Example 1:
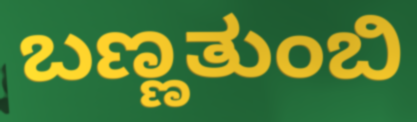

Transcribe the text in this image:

ಬಣ್ಣತುಂಬಿ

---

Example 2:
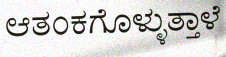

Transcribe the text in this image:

ಆತಂಕಗೊಳ್ಳುತ್ತಾಳೆ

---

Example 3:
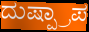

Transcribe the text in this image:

ದುಷ್ಪ್ರಾಪ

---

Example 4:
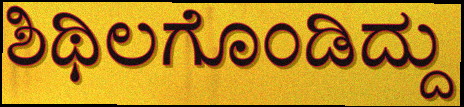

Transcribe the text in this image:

ಶಿಥಿಲಗೊಂಡಿದ್ದು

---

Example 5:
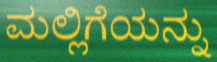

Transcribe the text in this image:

ಮಲ್ಲಿಗೆಯನ್ನು